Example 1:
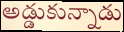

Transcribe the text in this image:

అడ్డుకున్నాడు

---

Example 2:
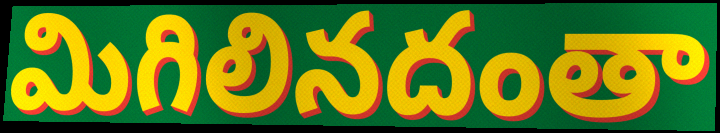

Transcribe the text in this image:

మిగిలినదంతా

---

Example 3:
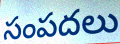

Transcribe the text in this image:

సంపదలు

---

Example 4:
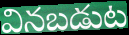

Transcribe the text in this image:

వినబడుట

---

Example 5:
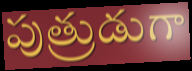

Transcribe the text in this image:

పుత్రుడుగా